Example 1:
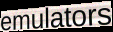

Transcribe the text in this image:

emulators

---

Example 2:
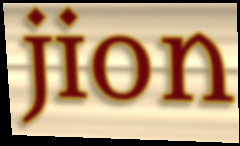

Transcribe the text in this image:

jion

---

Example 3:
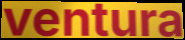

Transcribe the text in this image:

ventura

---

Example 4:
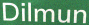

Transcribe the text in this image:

Dilmun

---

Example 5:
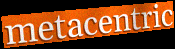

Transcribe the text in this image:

metacentric